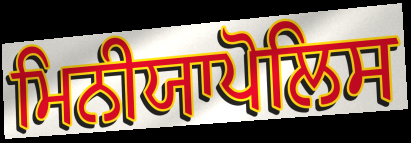
ਮਿਨੀਯਾਪੋਲਿਸ